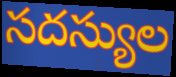
సదస్యుల